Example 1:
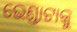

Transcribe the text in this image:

ଭେଣ୍ଡାଟାକୁ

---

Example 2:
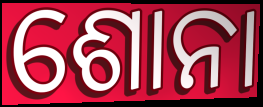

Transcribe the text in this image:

ଶୋନା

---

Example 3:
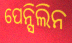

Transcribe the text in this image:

ପେନ୍ସିଲିନ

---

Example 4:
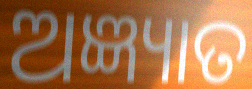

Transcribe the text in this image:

ଅଜ୍ଞ୍ୟାତ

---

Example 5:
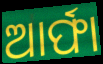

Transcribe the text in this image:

ଆର୍ଫା